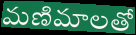
మణిమాలతో